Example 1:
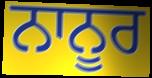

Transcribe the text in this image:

ਨਾਨੂਰ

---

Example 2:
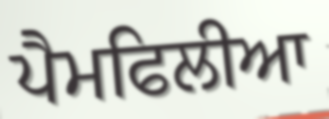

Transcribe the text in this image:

ਪੈਮਫਿਲੀਆ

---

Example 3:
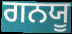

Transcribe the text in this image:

ਗਨਯੂ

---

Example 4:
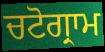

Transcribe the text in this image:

ਚਟੋਗ੍ਰਾਮ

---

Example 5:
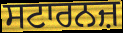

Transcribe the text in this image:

ਸਟਾਰਨਜ਼